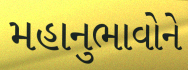
મહાનુભાવોને